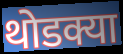
थोडक्या